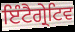
ਇੰਟੈਗ੍ਰੇਟਿਵ